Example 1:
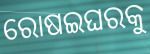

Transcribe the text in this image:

ରୋଷଇଘରକୁ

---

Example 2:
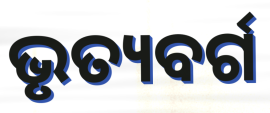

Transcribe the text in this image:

ଭୃତ୍ୟବର୍ଗ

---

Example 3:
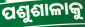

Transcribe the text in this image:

ପଶୁଶାଳାକୁ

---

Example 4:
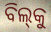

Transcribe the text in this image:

ବିଲ୍‌କୁ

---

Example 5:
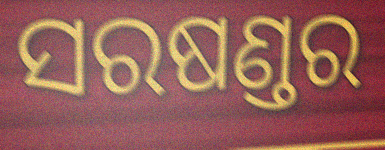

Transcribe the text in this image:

ସରଷଣ୍ଡର